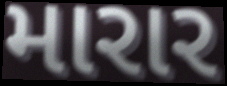
મારાર